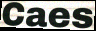
Caes